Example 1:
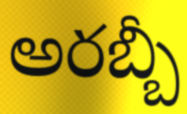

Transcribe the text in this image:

అరబ్బీ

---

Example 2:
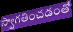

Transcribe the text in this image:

స్వాగతించడంతో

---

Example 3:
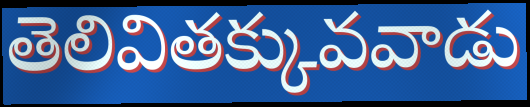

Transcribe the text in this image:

తెలివితక్కువవాడు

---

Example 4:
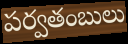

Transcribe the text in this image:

పర్వతంబులు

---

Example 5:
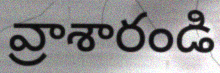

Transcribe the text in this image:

వ్రాశారండి